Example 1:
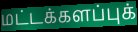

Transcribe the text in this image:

மட்டக்களப்புக்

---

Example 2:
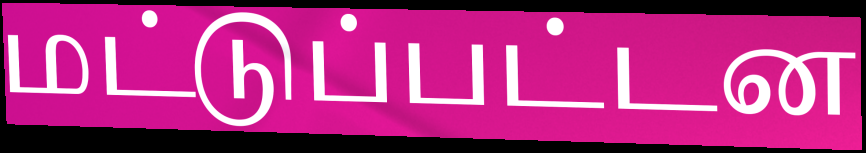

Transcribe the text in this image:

மட்டுப்பட்டன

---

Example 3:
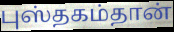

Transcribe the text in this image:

புஸ்தகம்தான்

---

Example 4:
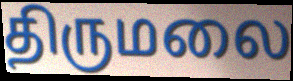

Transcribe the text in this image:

திருமலை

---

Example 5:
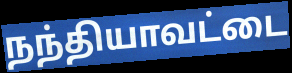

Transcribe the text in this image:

நந்தியாவட்டை